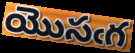
యొసఁగ